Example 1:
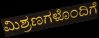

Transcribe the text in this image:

ಮಿಶ್ರಣಗಳೊಂದಿಗೆ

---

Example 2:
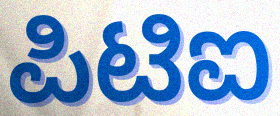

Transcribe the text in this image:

ಪಿಟಿಐ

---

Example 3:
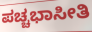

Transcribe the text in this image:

ಪಚ್ಚಭಾಸೀತಿ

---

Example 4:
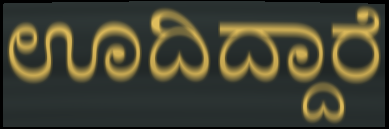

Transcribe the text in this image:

ಊದಿದ್ದಾರೆ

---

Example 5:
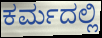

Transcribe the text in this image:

ಕರ್ಮದಲ್ಲಿ